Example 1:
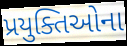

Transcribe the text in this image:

પ્રયુક્તિઓના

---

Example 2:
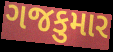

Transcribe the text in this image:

ગજકુમાર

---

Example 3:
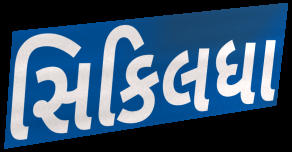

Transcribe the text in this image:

સિકિલધા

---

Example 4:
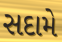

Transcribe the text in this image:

સદામે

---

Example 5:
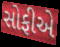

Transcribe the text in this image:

સોફીએ